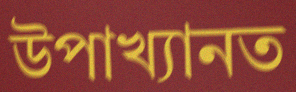
উপাখ্যানত